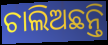
ଚାଲିଅଛନ୍ତି